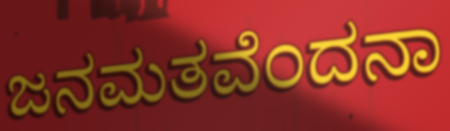
ಜನಮತವೆಂದನಾ